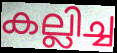
കല്ലിച്ച